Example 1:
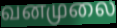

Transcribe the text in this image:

வனமுலை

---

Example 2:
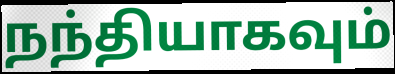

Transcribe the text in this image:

நந்தியாகவும்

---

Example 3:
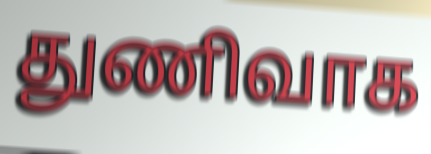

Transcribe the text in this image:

துணிவாக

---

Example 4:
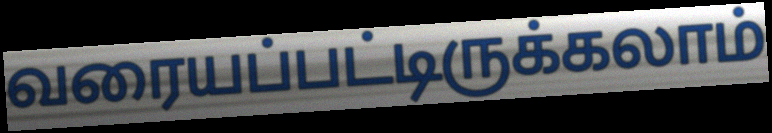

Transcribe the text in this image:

வரையப்பட்டிருக்கலாம்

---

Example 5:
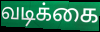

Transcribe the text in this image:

வடிக்கை